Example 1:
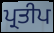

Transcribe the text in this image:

ਪ੍ਰਤੀਪ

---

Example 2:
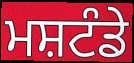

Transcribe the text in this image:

ਮਸ਼ਟੰਡੇ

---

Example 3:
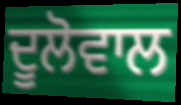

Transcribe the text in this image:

ਦੂਲੋਵਾਲ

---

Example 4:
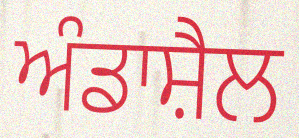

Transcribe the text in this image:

ਅੰਡਾਸ਼ੈਲ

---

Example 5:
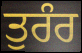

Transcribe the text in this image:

ਤੁਰੰਰ